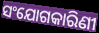
ସଂଯୋଗକାରିଣୀ